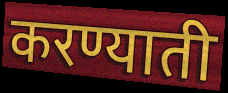
करण्याती